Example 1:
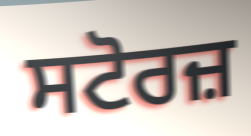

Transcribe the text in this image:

ਸਟੋਰਜ਼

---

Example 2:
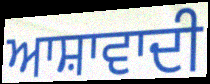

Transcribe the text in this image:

ਆਸ਼ਾਵਾਦੀ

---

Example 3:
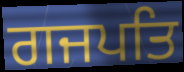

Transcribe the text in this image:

ਗਜਪਤਿ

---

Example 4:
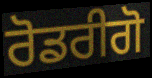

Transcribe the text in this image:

ਰੋਡਰੀਗੋ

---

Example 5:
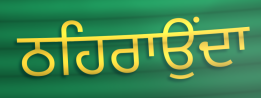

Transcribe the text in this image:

ਠਹਿਰਾਉਂਦਾ